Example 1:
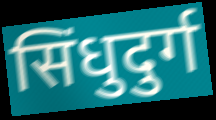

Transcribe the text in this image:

सिंधुदुर्ग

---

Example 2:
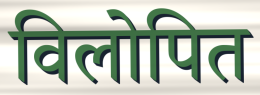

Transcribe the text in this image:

विलोपित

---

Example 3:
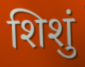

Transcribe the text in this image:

शिशुं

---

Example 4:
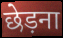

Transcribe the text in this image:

छेड़ना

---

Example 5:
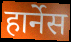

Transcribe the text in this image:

हार्नेस